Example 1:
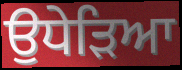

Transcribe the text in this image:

ਉਧੇੜਿਆ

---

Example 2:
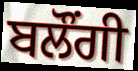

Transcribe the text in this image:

ਬਲੌਂਗੀ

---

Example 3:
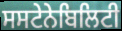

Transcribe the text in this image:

ਸਸਟੇਨੇਬਿਲਿਟੀ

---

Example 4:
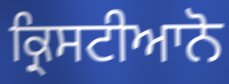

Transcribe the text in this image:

ਕ੍ਰਿਸਟੀਆਨੋ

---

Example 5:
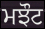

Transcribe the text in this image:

ਮਝੌਟ